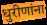
धुरीणांना